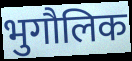
भुगौलिक